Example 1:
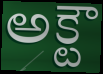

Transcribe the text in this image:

అక్టౌ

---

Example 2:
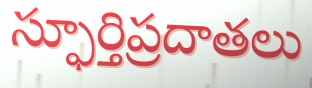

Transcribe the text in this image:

స్ఫూర్తిప్రదాతలు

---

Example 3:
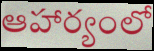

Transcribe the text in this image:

ఆహార్యంలో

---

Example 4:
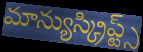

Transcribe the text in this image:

మాన్యుస్క్రిప్ట్స్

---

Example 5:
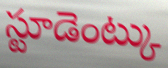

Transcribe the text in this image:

స్టూడెంట్కు